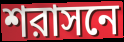
শরাসনে